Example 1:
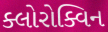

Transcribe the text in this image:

ક્લોરોક્વિન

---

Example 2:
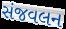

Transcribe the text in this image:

સંજવલન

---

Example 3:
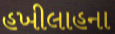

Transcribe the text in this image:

હખીલાહના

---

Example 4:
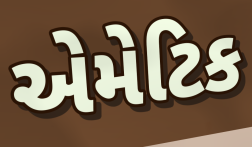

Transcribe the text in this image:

એમેટિક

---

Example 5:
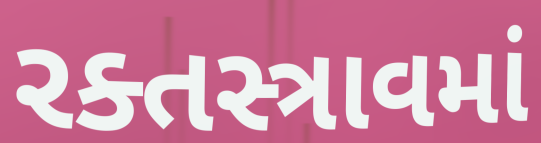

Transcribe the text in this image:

રક્તસ્ત્રાવમાં